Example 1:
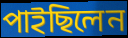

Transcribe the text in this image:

পাইছিলেন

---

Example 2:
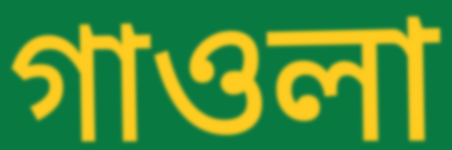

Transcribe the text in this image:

গাওলা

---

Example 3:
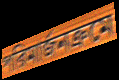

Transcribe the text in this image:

পরিমার্জনক্রমে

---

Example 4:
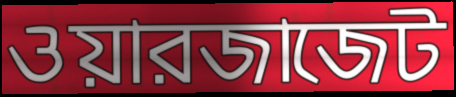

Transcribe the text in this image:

ওয়ারজাজেট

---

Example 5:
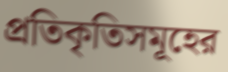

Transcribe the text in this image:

প্রতিকৃতিসমূহের